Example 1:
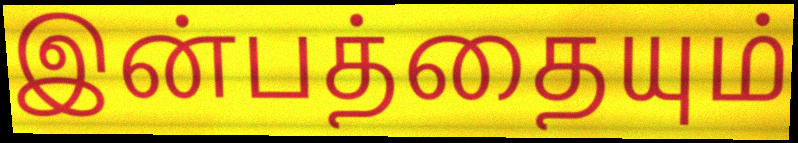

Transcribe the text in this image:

இன்பத்தையும்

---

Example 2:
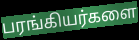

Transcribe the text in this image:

பரங்கியர்களை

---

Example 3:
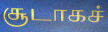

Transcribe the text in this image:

சூடாகச்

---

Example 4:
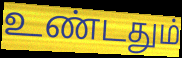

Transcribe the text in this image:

உண்டதும்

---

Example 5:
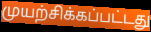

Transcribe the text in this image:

முயற்சிக்கப்பட்டது